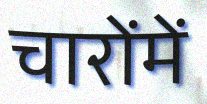
चारोंमें